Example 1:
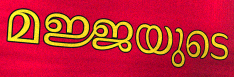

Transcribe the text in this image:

മജ്ജയുടെ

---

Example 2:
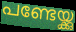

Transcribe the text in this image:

പണ്ടേയ്ക്കു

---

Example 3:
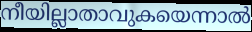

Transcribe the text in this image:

നീയില്ലാതാവുകയെന്നാൽ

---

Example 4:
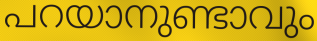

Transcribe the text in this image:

പറയാനുണ്ടാവും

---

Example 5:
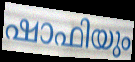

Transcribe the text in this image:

ഷാഫിയും